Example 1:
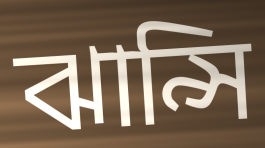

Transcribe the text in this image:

ঝান্সি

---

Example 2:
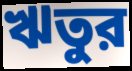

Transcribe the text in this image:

ঋতুর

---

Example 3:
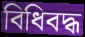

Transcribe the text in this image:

বিধিবদ্ধ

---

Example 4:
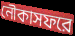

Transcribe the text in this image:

নৌকাসফরে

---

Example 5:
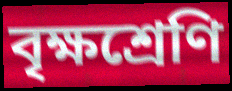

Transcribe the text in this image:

বৃক্ষশ্রেণি